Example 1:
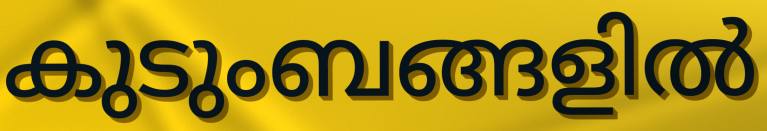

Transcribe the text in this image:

കുടുംബങ്ങളിൽ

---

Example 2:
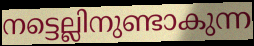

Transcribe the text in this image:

നട്ടെല്ലിനുണ്ടാകുന്ന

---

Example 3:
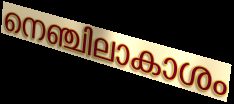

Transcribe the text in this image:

നെഞ്ചിലാകാശം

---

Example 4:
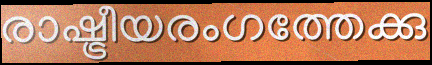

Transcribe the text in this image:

രാഷ്ട്രീയരംഗത്തേക്കു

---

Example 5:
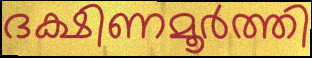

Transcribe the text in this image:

ദക്ഷിണമൂർത്തി